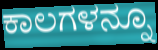
ಕಾಲಗಳನ್ನೂ